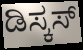
ಡಿಸ್ಕಸ್